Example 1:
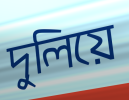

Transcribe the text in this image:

দুলিয়ে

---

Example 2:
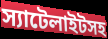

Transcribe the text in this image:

স্যাটেলাইটসহ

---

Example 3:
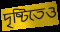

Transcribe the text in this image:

দৃষ্টিতেও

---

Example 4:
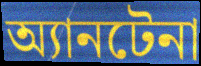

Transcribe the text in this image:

অ্যানটেনা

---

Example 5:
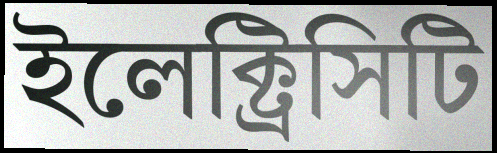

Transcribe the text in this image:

ইলেক্ট্রিসিটি